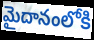
మైదానంలోకి